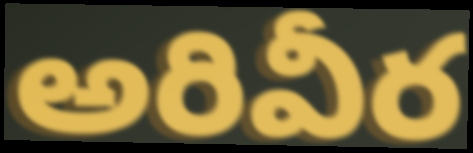
అరివీర